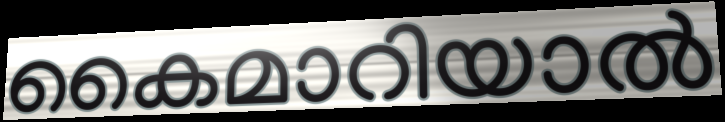
കൈമാറിയാൽ